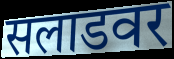
सलाडवर